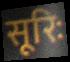
सूरिः